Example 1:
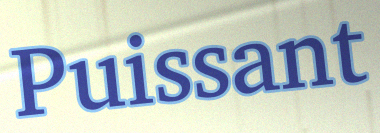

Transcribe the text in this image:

Puissant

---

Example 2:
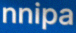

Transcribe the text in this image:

nnipa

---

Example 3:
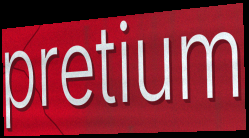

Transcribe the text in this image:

pretium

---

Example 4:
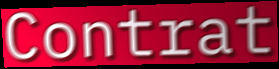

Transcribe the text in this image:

Contrat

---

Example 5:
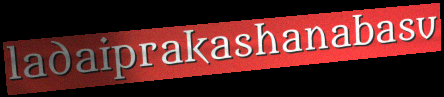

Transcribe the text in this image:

ladaiprakashanabasu